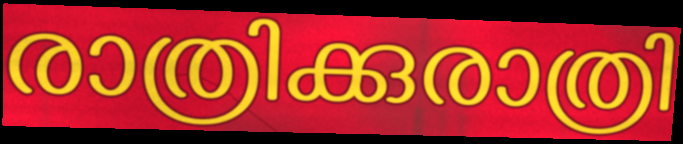
രാത്രിക്കുരാത്രി